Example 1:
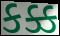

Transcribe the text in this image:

કક્ક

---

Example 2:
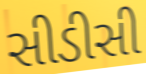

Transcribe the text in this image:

સીડીસી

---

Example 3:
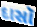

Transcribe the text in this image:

દાસૉ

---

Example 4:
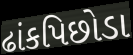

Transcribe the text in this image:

ઢાંકપિછોડા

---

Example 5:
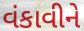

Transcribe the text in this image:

વંકાવીને